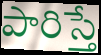
పారిస్తే